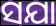
ସଯା